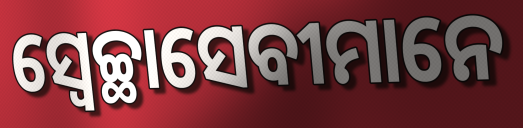
ସ୍ୱେଚ୍ଛାସେବୀମାନେ